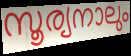
സൂര്യനാലും